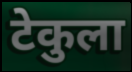
टेकुला